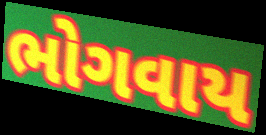
ભોગવાય